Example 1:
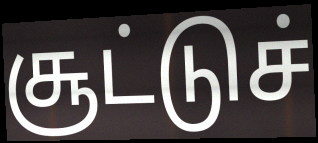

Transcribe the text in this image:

சூட்டுச்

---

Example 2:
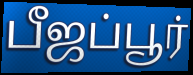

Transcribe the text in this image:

பீஜப்பூர்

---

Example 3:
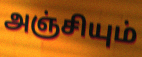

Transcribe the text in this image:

அஞ்சியும்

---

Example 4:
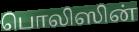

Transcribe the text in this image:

பொலிஸின்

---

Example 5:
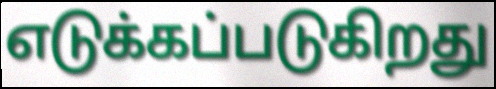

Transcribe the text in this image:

எடுக்கப்படுகிறது